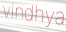
vindhya